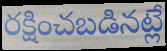
రక్షించబడినట్లే